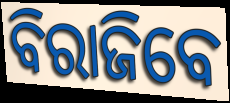
ବିରାଜିବେ